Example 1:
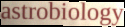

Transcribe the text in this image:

astrobiology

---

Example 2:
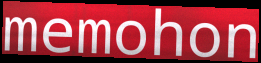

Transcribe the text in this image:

memohon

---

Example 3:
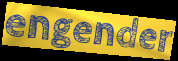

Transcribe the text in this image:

engender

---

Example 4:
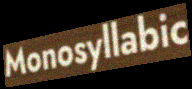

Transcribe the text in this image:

Monosyllabic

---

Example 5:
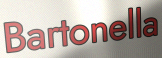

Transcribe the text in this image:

Bartonella